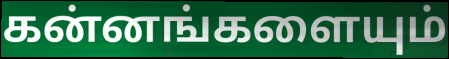
கன்னங்களையும்